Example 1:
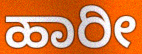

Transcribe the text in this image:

ಹಾರೀ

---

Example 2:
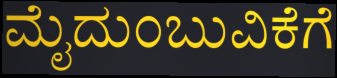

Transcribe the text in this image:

ಮೈದುಂಬುವಿಕೆಗೆ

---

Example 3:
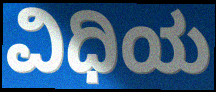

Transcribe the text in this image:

ವಿಧಿಯ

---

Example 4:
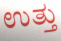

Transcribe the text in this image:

ಉತ್ತು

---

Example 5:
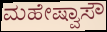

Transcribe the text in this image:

ಮಹೇಷ್ವಾಸೌ